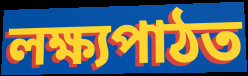
লক্ষ্যপাঠত